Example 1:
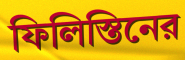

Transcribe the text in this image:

ফিলিস্তিনের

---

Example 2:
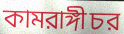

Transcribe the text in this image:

কামরাঙ্গীচর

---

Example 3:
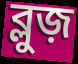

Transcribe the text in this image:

ব্লুজ়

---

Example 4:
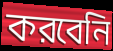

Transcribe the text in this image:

করবেনি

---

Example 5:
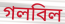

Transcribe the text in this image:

গলবিল